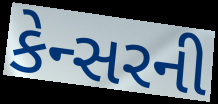
કેન્સરની